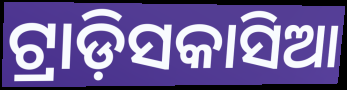
ଟ୍ରାଡ଼ିସକାସିଆ